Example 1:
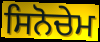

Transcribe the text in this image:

ਸਿਨੋਚੇਮ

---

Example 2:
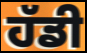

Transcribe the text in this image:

ਹੱਡੀ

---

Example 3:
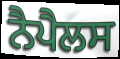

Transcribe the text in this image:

ਨੈਪੈਲਸ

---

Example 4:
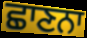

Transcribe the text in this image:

ਛਾਣਨਾ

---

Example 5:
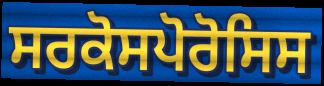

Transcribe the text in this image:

ਸਰਕੋਸਪੋਰੋਸਿਸ